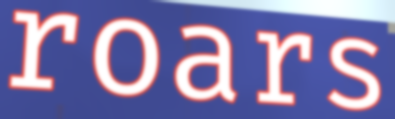
roars